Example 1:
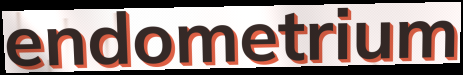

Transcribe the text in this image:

endometrium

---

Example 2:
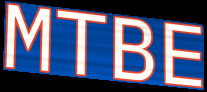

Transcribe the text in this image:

MTBE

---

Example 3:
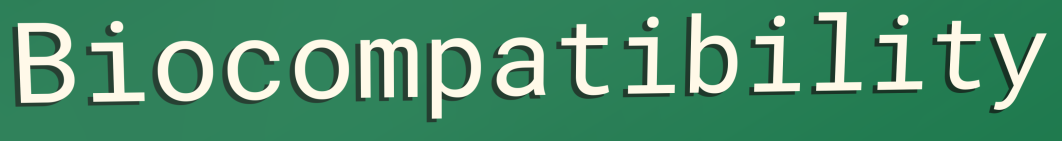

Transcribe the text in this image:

Biocompatibility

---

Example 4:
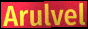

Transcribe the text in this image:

Arulvel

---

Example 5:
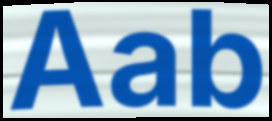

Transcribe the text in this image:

Aab